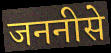
जननीसे